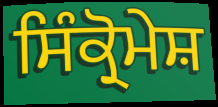
ਸਿੰਕ੍ਰੋਮੇਸ਼